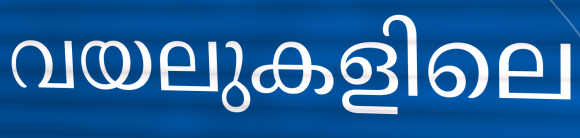
വയലുകളിലെ